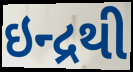
ઇન્દ્રથી